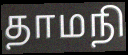
தாமநி